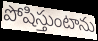
పోషిస్తుంటాను